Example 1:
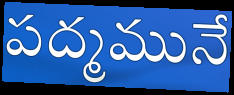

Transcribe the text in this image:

పద్మమునే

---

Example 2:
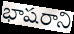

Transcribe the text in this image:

భాషరాని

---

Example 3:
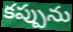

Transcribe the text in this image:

కప్పును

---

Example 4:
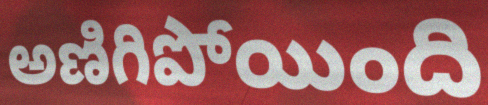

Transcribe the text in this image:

అణిగిపోయింది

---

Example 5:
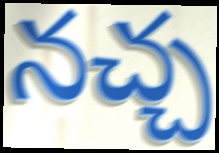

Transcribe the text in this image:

నచ్చ